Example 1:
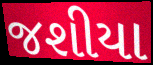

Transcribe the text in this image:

જશીયા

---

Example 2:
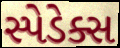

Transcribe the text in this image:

સ્પેડેક્સ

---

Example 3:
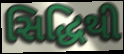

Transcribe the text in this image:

સિદ્ધિથી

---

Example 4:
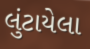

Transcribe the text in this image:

લુંટાયેલા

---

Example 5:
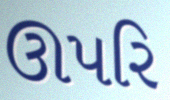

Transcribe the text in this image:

ઊપરિ